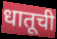
धातूची